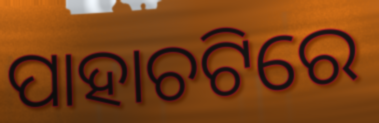
ପାହାଚଟିରେ